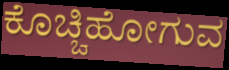
ಕೊಚ್ಚಿಹೋಗುವ